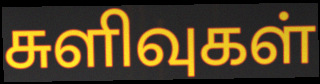
சுளிவுகள்